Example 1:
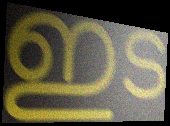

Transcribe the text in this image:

ഇട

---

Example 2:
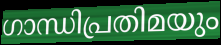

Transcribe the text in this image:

ഗാന്ധിപ്രതിമയും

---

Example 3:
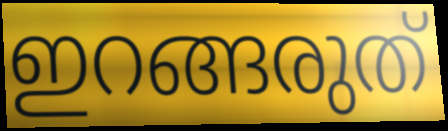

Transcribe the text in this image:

ഇറങ്ങരുത്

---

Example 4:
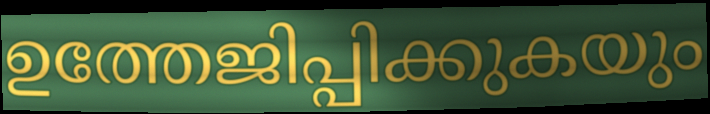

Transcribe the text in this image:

ഉത്തേജിപ്പിക്കുകയും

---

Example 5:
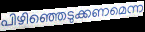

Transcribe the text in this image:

പിഴിഞ്ഞെടുക്കണമെന്ന